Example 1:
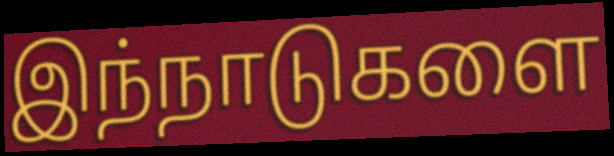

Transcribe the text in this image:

இந்நாடுகளை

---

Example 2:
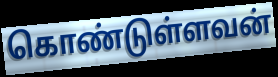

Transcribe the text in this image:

கொண்டுள்ளவன்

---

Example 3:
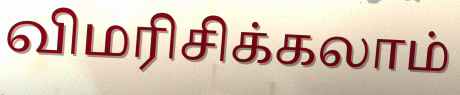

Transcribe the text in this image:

விமரிசிக்கலாம்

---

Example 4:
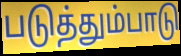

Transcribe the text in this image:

படுத்தும்பாடு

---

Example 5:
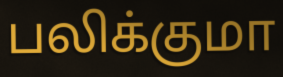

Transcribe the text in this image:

பலிக்குமா